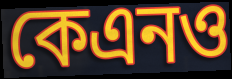
কেএনও